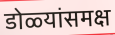
डोळ्यांसमक्ष